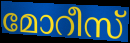
മോറീസ്